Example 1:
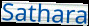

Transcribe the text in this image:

Sathara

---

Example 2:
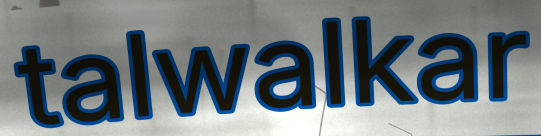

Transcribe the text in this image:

talwalkar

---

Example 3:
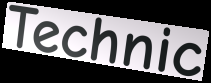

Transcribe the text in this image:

Technic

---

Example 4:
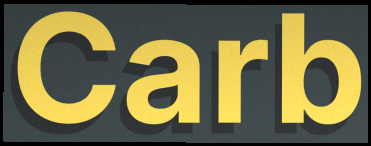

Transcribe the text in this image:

Carb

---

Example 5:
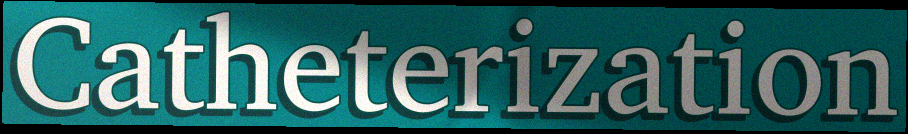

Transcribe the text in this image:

Catheterization